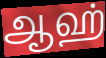
ஆஹ்